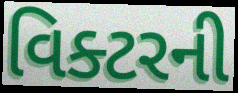
વિક્ટરની